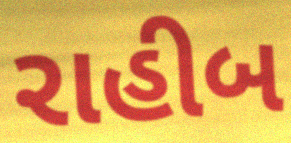
રાહીબ